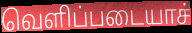
வெளிப்படையாச்